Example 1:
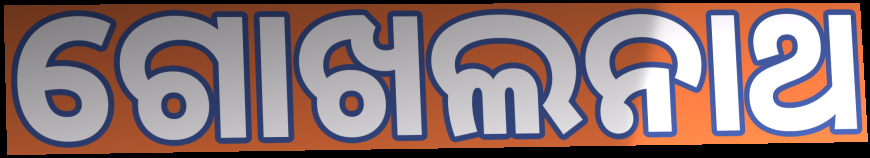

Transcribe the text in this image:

ଗୋଖଲନାଥ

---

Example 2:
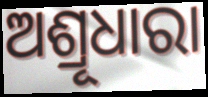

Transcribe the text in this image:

ଅଶ୍ରୂଧାରା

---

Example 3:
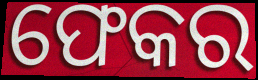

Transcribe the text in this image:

ଫେକର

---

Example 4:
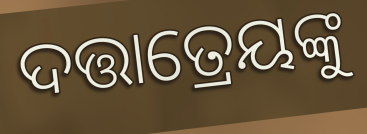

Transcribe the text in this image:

ଦତ୍ତାତ୍ରେୟଙ୍କୁ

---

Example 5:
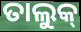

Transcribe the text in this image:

ତାଲୁକ୍